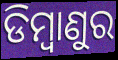
ଡିମ୍ବାଣୁର